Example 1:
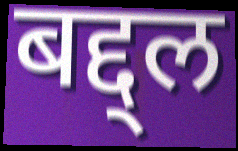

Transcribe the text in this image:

बद्द्ल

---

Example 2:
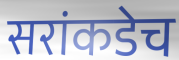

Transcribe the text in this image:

सरांकडेच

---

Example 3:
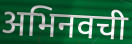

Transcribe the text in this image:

अभिनवची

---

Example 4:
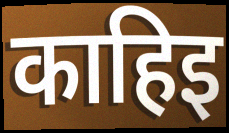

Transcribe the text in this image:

काहिइ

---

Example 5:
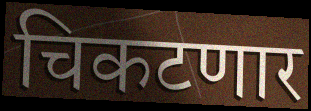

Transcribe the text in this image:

चिकटणार